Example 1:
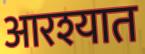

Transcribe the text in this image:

आरश्यात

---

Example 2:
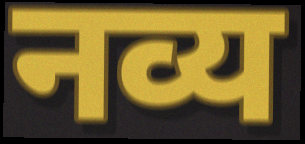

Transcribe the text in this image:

नव्य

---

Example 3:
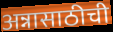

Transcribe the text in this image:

अन्नासाठीची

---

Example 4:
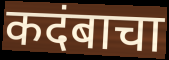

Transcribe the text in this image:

कदंबाचा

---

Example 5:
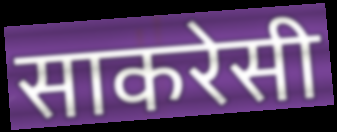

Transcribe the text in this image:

साकरेसी